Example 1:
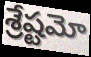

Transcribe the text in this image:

శ్రేష్టమో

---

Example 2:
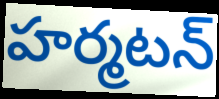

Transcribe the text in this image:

హర్మటన్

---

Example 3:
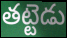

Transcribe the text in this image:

తట్టెడు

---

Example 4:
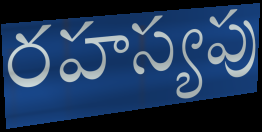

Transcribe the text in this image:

రహస్యపు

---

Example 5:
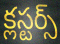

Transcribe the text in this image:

క్లస్టర్స్